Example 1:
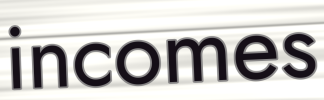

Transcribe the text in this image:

incomes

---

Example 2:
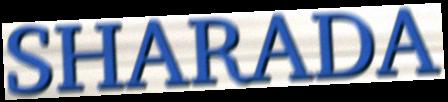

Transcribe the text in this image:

SHARADA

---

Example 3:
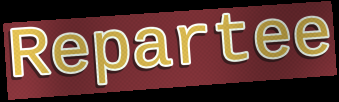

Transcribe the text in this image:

Repartee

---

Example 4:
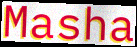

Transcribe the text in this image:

Masha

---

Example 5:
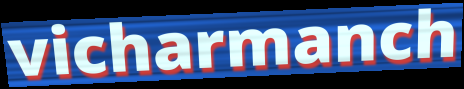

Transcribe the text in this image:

vicharmanch